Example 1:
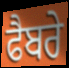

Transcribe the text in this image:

ਫੈਬਰੇ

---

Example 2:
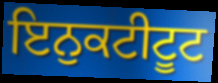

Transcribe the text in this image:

ਇਨੁਕਟੀਟੂਟ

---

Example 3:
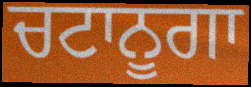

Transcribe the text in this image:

ਚਟਾਨੂਗਾ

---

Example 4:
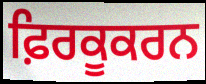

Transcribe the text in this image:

ਫ਼ਿਰਕੂਕਰਨ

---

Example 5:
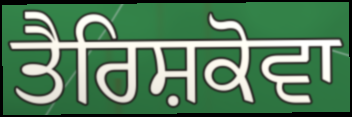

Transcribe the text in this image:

ਤੈਰਿਸ਼ਕੋਵਾ